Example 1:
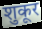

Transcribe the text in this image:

शुकूर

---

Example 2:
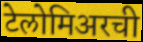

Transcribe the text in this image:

टेलोमिअरची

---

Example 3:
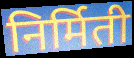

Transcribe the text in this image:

निर्मिती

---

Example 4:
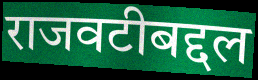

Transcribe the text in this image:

राजवटीबद्दल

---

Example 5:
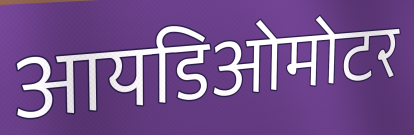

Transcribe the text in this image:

आयडिओमोटर